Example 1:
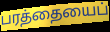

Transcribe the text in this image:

பரத்தையைப்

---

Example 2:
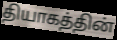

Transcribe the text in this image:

தியாகத்தின்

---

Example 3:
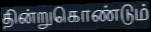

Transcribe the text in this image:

தின்றுகொண்டும்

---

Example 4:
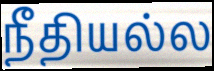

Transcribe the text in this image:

நீதியல்ல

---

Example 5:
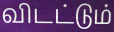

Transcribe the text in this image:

விடட்டும்